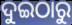
ଦୁଇଠାରୁ